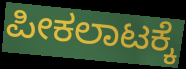
ಪೀಕಲಾಟಕ್ಕೆ